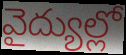
వైద్యుల్లో